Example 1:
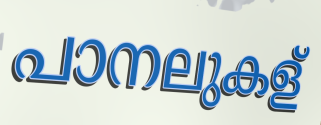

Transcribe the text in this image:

പാനലുകള്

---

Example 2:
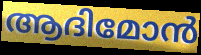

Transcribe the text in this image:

ആദിമോൻ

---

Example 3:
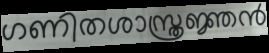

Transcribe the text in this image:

ഗണിതശാസ്ത്രജ്ഞൻ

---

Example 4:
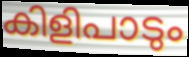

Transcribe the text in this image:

കിളിപാടും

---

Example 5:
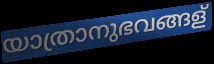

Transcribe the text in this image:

യാത്രാനുഭവങ്ങള്